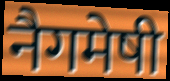
नैगमेषी